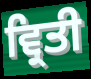
ਵ੍ਰਿਤੀ